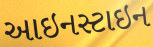
આઇનસ્ટાઇન